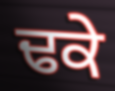
ਢਕੇ